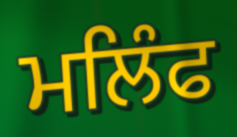
ਮਲਿੰਫ